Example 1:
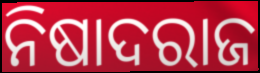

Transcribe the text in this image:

ନିଷାଦରାଜ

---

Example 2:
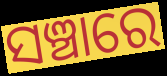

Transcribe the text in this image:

ସଞ୍ଚାରେ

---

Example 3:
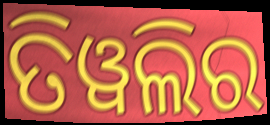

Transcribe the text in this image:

ତିୱଲିର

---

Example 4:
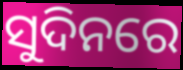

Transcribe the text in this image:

ସୁଦିନରେ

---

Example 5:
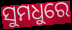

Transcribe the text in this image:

ସୁମଧୁରେ